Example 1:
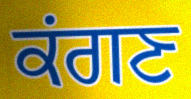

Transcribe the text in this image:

ਕਂਗਣ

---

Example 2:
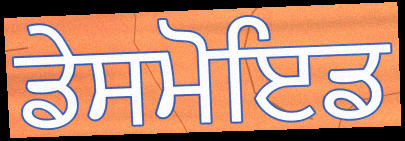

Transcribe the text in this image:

ਡੇਸਮੋਇਡ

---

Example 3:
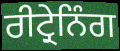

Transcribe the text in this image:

ਰੀਟ੍ਰੇਨਿੰਗ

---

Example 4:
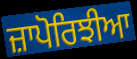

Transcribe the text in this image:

ਜ਼ਾਪੋਰਿਝੀਆ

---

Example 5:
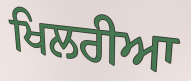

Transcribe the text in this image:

ਖਿਲਰੀਆ